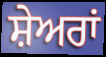
ਸ਼ੇਅਰਾਂ